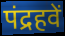
पंद्रहवें